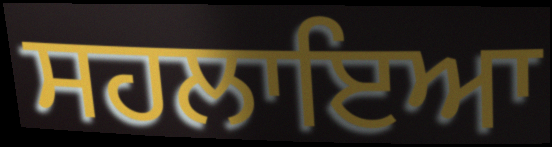
ਸਹਲਾਇਆ